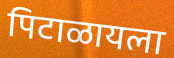
पिटाळायला